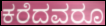
ಕರೆದವರೂ